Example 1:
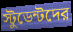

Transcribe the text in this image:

স্টুডেন্টদের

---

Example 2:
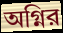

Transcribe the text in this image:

অগ্নির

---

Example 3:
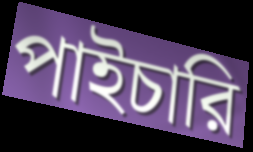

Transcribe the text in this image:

পাইচারি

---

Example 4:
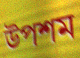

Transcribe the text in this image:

উপশম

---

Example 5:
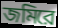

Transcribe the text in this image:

জমিরে